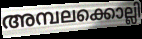
അമ്പലക്കൊല്ലി